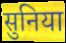
सुनिया